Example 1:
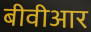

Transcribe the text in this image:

बीवीआर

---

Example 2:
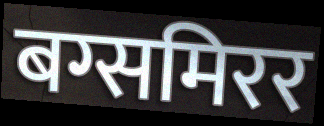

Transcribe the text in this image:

बग्समिरर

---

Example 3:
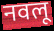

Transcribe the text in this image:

नवलू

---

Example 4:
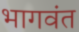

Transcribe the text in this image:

भागवंत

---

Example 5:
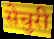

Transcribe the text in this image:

सेचुरी